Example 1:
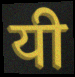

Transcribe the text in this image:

यी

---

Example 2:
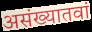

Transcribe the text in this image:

असंख्यातवां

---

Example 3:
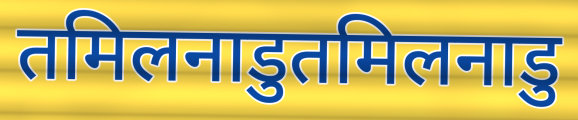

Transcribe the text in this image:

तमिलनाडुतमिलनाडु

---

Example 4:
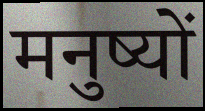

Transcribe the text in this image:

मनुष्यों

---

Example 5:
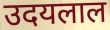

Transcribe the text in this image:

उदयलाल